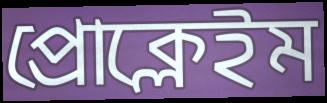
প্রোক্লেইম